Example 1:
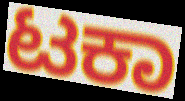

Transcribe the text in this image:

ಟಕಾ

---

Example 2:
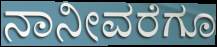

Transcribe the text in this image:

ನಾನೀವರೆಗೂ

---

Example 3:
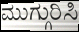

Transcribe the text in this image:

ಮುಗ್ಗುರಿಸಿ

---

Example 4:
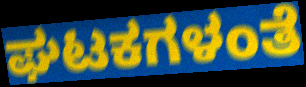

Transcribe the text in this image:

ಘಟಕಗಳಂತೆ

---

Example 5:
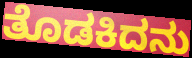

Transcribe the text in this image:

ತೊಡಕಿದನು